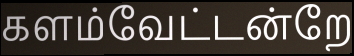
களம்வேட்டன்றே